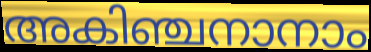
അകിഞ്ചനാനാം